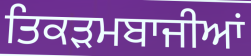
ਤਿਕੜਮਬਾਜੀਆਂ